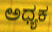
ಅಧ್ಯಕ